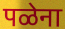
पळेना